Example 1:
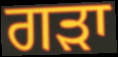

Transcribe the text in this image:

ਗੜਾ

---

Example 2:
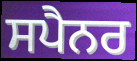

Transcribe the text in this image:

ਸਪੈਨਰ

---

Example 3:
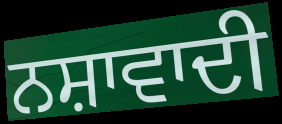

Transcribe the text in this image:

ਨਸ਼ਾਵਾਦੀ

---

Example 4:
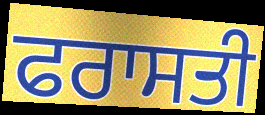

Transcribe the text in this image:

ਫਰਾਸਤੀ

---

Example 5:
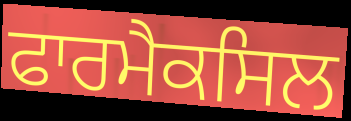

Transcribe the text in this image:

ਫਾਰਮੈਕਸਿਲ